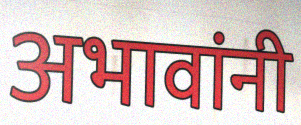
अभावांनी